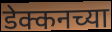
डेक्कनच्या